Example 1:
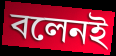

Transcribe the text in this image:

বলেনই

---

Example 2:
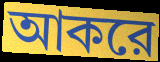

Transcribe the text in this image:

আকরে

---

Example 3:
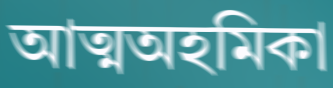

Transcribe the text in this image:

আত্মঅহমিকা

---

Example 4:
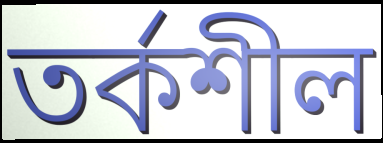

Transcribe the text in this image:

তর্কশীল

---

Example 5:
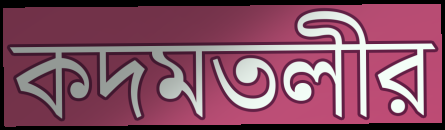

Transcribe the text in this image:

কদমতলীর